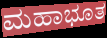
ಮಹಾಭೂತ